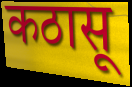
कठासू